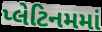
પ્લેટિનમમાં